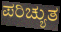
ಪರಿಚ್ಯುತ